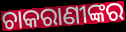
ଚାକରାଣୀଙ୍କର